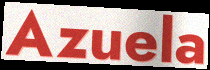
Azuela